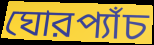
ঘোরপ্যাঁচ